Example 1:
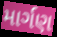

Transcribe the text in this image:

માર્ગણ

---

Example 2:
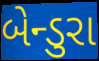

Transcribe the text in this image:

બેન્ડુરા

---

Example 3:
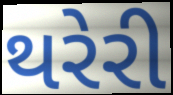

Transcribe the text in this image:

થરેરી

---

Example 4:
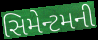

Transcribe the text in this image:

સિમેન્ટમની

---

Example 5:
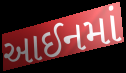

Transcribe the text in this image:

આઈનમાં